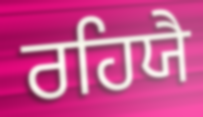
ਰਹਿਯੈ